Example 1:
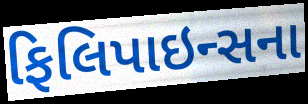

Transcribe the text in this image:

ફિલિપાઇન્સના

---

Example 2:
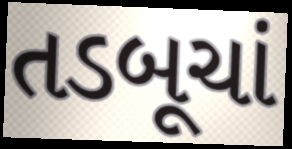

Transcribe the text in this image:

તડબૂચાં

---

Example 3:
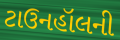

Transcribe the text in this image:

ટાઉનહૉલની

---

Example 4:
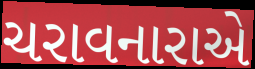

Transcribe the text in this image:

ચરાવનારાએ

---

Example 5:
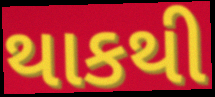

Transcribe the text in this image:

થાકથી